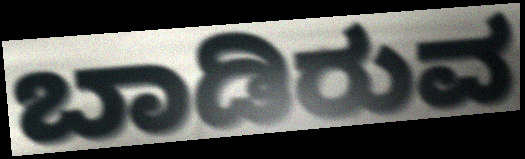
ಬಾಡಿರುವ